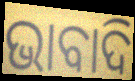
ଭାବାଦି